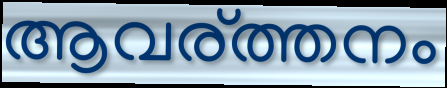
ആവര്ത്തനം